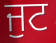
ਜੁਟ